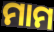
ମାମ